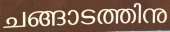
ചങ്ങാടത്തിനു